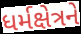
ધર્મક્ષેત્રને